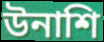
উনাশি